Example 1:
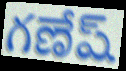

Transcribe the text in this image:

గణేష్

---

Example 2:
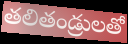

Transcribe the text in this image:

తలితండ్రులతో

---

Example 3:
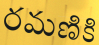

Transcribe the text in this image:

రమణికి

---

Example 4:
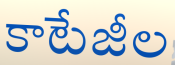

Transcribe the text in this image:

కాటేజీల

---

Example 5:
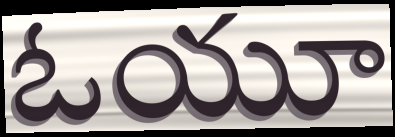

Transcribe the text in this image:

ఓయూ